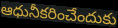
ఆధునీకరించేందుకు